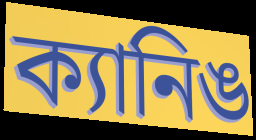
ক্যানিঙ